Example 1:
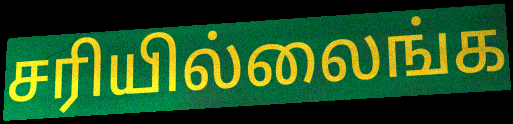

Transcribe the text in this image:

சரியில்லைங்க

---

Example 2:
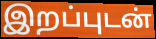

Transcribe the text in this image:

இறப்புடன்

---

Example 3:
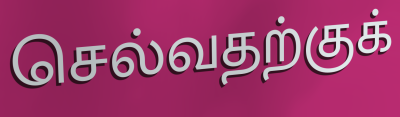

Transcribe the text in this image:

செல்வதற்குக்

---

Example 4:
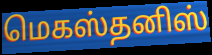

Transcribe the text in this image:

மெகஸ்தனிஸ்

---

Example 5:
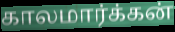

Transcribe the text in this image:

காலமார்க்கன்